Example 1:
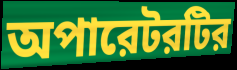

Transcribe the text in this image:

অপারেটরটির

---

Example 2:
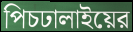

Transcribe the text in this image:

পিচঢালাইয়ের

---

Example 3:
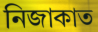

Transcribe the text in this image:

নিজাকাত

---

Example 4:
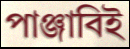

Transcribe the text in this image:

পাঞ্জাবিই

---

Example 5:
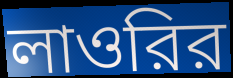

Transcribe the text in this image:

লাওরির